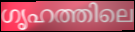
ഗൃഹത്തിലെ